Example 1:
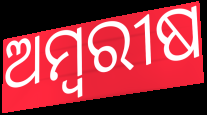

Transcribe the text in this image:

ଅମ୍ବରୀଷ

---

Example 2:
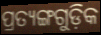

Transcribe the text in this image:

ପ୍ରତ୍ୟଙ୍ଗଗୁଡ଼ିକ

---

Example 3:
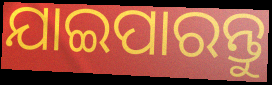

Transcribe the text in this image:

ଯାଇପାରନ୍ତୁ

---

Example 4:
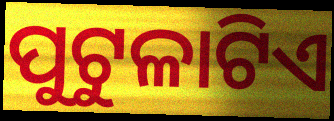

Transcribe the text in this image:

ପୁଟୁଳାଟିଏ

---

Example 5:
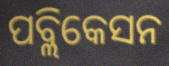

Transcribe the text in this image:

ପବ୍ଲିକେସନ